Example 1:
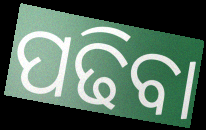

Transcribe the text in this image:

ପଢିବା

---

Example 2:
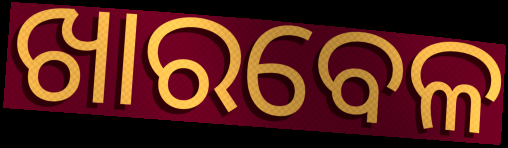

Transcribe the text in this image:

ଖାରବେଳ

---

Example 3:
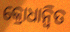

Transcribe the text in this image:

କ୍ରୋଧାନ୍ୱିତ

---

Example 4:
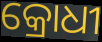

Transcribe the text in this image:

କ୍ରୋଧୀ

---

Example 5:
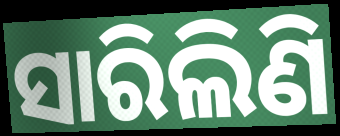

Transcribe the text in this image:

ସାରିଲିଣି